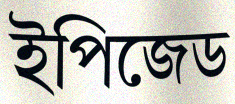
ইপিজেড